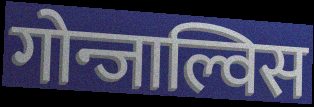
गोन्जाल्विस